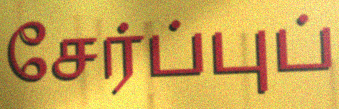
சேர்ப்புப்